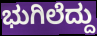
ಭುಗಿಲೆದ್ದು